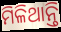
ମିଳିଥାନ୍ତି